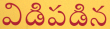
విడిపడిన